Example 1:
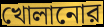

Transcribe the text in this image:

খোলানোর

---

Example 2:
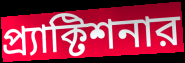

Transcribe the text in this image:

প্র্যাক্টিশনার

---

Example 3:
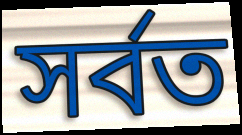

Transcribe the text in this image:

সর্বত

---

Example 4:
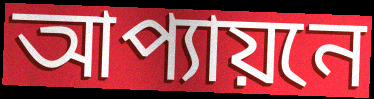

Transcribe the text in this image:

আপ্যায়নে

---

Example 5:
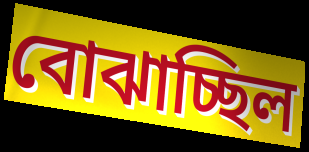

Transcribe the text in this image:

বোঝাচ্ছিল